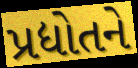
પ્રદ્યોતને